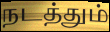
நடத்தும்